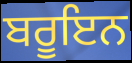
ਬਰੂਇਨ